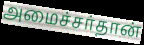
அமைச்சர்தான்